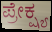
ಪ್ರೇಕ್ಷ್ಯ